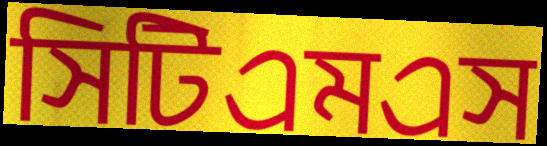
সিটিএমএস